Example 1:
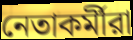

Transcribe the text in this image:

নেতাকর্মীরা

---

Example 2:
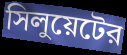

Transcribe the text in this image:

সিলুয়েটের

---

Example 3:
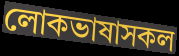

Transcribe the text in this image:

লোকভাষাসকল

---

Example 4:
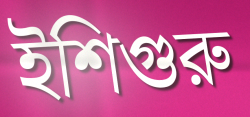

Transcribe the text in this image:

ইশিগুরু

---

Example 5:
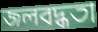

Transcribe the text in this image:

জলবদ্ধতা